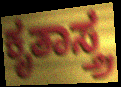
ಕೃತಾಸ್ತ್ರ